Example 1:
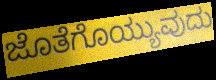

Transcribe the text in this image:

ಜೊತೆಗೊಯ್ಯುವುದು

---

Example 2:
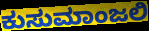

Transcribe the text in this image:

ಕುಸುಮಾಂಜಲಿ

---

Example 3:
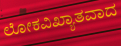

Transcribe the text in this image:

ಲೋಕವಿಖ್ಯಾತವಾದ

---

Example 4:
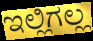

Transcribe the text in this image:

ಇಲ್ಲಿಗಲ್ಲ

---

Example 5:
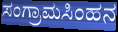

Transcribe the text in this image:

ಸಂಗ್ರಾಮಸಿಂಹನ